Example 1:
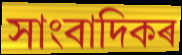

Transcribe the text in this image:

সাংবাদিকৰ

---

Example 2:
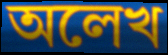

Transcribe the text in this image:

অলেখ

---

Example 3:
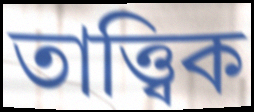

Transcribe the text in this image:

তাত্ত্বিক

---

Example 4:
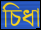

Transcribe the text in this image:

চিধা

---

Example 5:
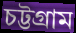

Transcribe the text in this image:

চট্টগ্ৰাম